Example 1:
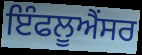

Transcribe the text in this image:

ਇੰਫਲੂਐਂਸਰ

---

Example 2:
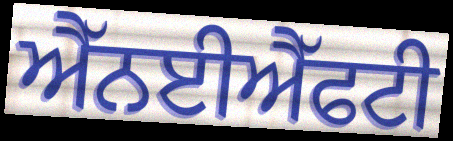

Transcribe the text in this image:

ਐੱਨਈਐੱਫਟੀ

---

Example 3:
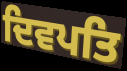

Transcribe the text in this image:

ਦਿਵਪਤਿ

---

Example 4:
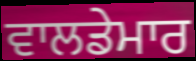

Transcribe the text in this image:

ਵਾਲਡੇਮਾਰ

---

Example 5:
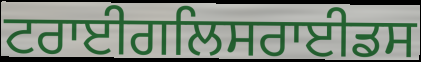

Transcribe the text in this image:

ਟਰਾਈਗਲਿਸਰਾਈਡਸ